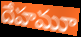
దేహమూ